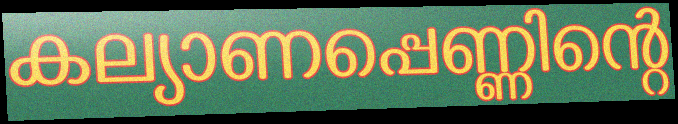
കല്യാണപ്പെണ്ണിന്റെ